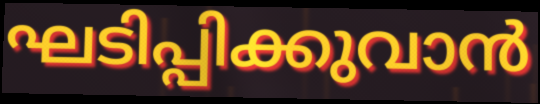
ഘടിപ്പിക്കുവാൻ